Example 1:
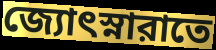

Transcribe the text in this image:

জ্যোৎস্নারাতে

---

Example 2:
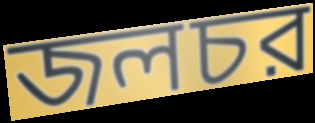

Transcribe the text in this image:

জলচর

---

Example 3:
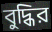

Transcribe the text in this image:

বুদ্ধির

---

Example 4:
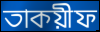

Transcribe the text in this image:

তাকয়ীফ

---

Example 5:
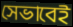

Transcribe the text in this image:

সেভাবেই